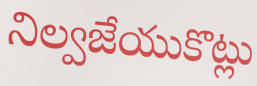
నిల్వజేయుకొట్లు